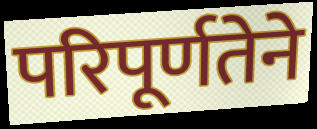
परिपूर्णतेने